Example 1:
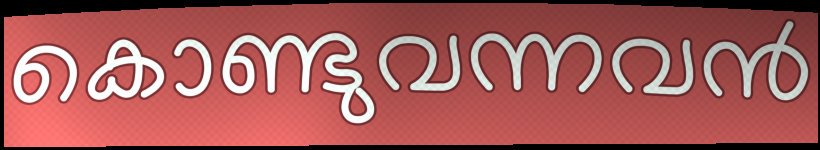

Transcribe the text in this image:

കൊണ്ടുവന്നവൻ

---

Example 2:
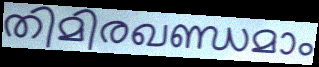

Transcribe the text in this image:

തിമിരഖണ്ഡമാം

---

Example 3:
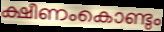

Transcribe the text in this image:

ക്ഷീണംകൊണ്ടും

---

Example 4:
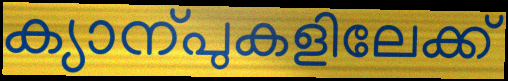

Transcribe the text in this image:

ക്യാന്പുകളിലേക്ക്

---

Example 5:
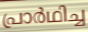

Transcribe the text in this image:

പ്രാർഥിച്ച